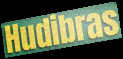
Hudibras